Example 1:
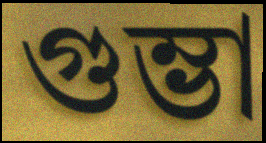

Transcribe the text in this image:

গুম্ভা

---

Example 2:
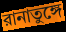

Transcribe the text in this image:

রানাতুঙ্গে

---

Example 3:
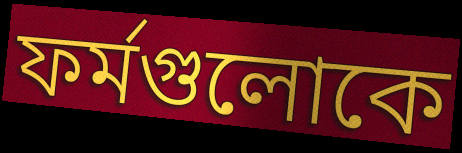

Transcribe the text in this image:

ফর্মগুলোকে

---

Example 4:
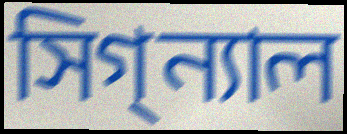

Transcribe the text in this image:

সিগ্‌ন্যাল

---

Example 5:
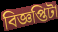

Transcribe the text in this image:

বিজ্ঞপ্তিটা